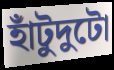
হাঁটুদুটো